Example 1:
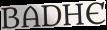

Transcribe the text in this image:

BADHE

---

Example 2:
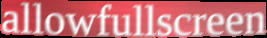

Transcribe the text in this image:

allowfullscreen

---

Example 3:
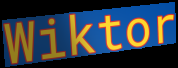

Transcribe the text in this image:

Wiktor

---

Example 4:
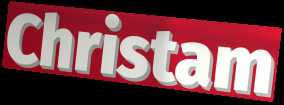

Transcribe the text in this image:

Christam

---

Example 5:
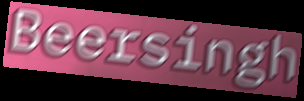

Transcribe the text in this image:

Beersingh